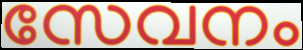
സേവനം